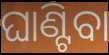
ଘାଣ୍ଟିବା